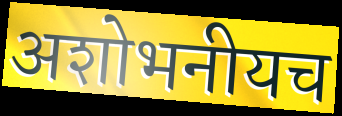
अशोभनीयच